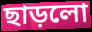
ছাড়লো